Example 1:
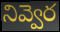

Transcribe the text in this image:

నివ్వెర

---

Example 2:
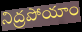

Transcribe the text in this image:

నిద్రపోయాం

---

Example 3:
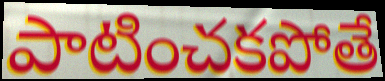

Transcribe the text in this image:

పాటించకపోతే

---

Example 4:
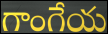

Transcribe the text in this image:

గాంగేయ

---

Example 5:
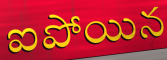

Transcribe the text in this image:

ఐపోయిన